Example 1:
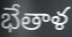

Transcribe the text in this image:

భేతాళ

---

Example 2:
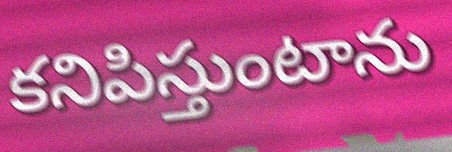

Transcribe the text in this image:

కనిపిస్తుంటాను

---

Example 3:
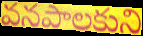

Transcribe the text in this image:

వనపాలకుని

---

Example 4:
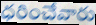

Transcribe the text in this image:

ధరించేవారు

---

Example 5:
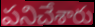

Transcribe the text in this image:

పనిచేశారు